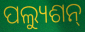
ପଲ୍ୟୁଶନ୍